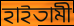
হাইতামী